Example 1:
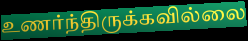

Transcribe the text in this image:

உணர்ந்திருக்கவில்லை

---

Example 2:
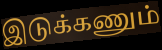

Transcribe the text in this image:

இடுக்கணும்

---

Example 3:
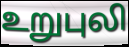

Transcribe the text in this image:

உறுபுலி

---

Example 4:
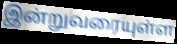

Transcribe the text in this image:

இன்றுவரையுள்ள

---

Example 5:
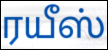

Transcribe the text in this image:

ரயீஸ்